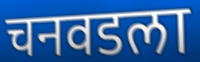
चनवडला